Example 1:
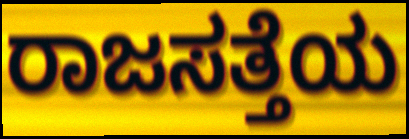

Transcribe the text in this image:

ರಾಜಸತ್ತೆಯ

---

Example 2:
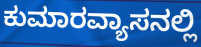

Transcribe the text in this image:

ಕುಮಾರವ್ಯಾಸನಲ್ಲಿ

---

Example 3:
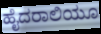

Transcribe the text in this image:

ಹೈದರಾಲಿಯೂ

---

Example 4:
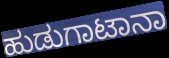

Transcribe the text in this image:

ಹುಡುಗಾಟಾನಾ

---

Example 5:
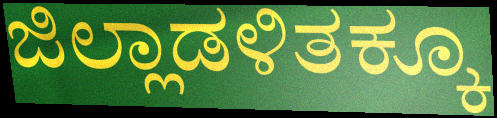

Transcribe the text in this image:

ಜಿಲ್ಲಾಡಳಿತಕ್ಕೂ